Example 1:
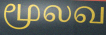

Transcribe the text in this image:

மூலவ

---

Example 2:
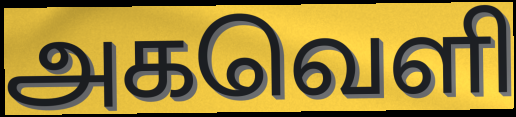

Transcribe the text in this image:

அகவெளி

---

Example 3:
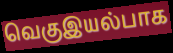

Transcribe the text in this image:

வெகுஇயல்பாக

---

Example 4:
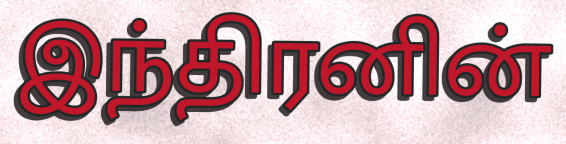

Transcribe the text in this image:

இந்திரனின்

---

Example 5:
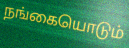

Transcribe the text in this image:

நங்கையொடும்